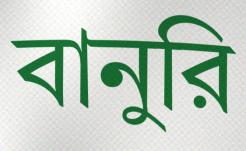
বানুরি